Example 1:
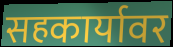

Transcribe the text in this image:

सहकार्यावर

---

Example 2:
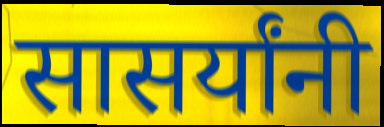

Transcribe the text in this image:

सासर्यांनी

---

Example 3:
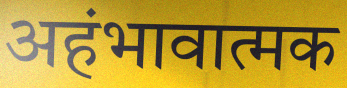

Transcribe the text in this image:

अहंभावात्मक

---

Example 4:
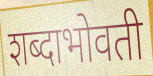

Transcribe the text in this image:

शब्दाभोवती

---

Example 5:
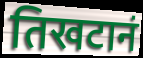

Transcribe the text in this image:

तिखटानं